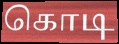
கொடி